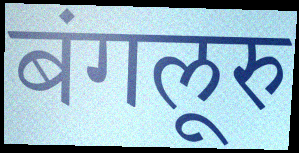
बंगलूरु